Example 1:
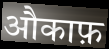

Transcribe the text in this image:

औकाफ़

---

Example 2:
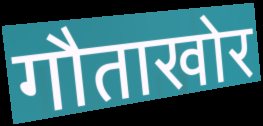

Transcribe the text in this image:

गौताखोर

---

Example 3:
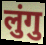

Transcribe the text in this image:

लुंगु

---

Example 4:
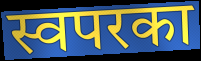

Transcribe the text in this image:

स्वपरका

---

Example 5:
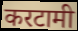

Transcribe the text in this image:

करटामी